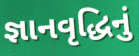
જ્ઞાનવૃદ્ધિનું